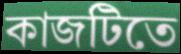
কাজটিতে